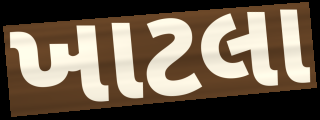
ખાટલા